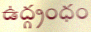
ఉద్గ్రంధం